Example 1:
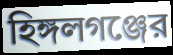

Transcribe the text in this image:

হিঙ্গলগঞ্জের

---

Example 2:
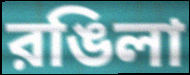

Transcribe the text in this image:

রঙিলা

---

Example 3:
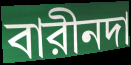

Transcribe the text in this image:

বারীনদা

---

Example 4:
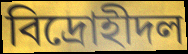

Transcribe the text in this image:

বিদ্রোহীদল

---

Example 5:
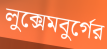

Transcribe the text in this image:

লুক্সেমবুর্গের